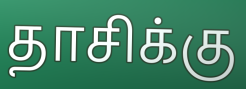
தாசிக்கு